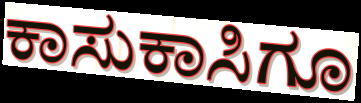
ಕಾಸುಕಾಸಿಗೂ